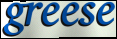
greese